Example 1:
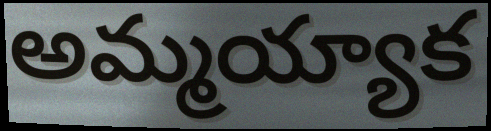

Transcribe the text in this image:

అమ్మయ్యాక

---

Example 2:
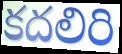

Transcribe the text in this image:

కదలిరి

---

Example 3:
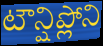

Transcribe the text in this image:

టౌన్షిప్లోని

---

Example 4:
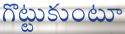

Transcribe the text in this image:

గొట్టుకుంటూ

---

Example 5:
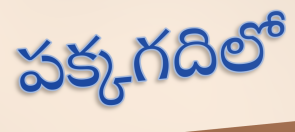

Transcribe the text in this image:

పక్కగదిలో